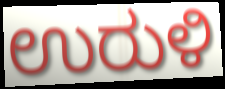
ಉರುಳಿ